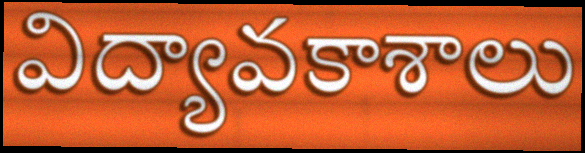
విద్యావకాశాలు